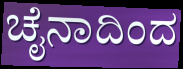
ಚೈನಾದಿಂದ